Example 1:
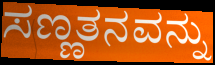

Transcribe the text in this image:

ಸಣ್ಣತನವನ್ನು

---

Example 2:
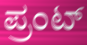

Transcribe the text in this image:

ಪ್ರಂಟ್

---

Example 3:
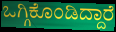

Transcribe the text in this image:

ಒಗ್ಗಿಕೊಂಡಿದ್ದಾರೆ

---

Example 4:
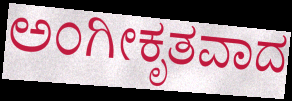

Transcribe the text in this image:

ಅಂಗೀಕೃತವಾದ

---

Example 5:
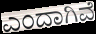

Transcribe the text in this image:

ಎಂದಾಗಿವೆ